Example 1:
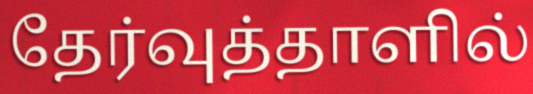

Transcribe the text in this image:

தேர்வுத்தாளில்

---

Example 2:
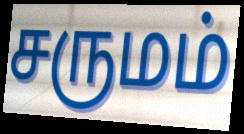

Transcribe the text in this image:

சருமம்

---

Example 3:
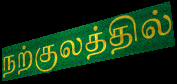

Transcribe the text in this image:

நற்குலத்தில்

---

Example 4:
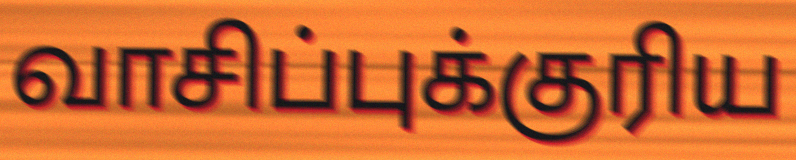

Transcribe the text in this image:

வாசிப்புக்குரிய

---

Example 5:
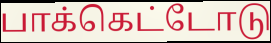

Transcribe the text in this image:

பாக்கெட்டோடு